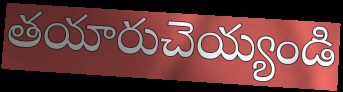
తయారుచెయ్యండి